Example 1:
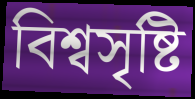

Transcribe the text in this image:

বিশ্বসৃষ্টি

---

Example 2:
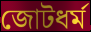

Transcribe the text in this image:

জোটধর্ম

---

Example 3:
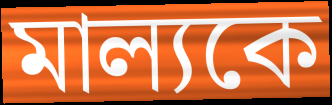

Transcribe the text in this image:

মাল্যকে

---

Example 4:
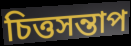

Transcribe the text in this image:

চিত্তসন্তাপ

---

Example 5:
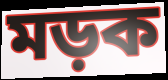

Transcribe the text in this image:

মড়ক